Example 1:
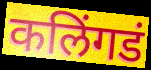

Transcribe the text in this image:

कलिंगडं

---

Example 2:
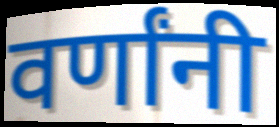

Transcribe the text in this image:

वर्णांनी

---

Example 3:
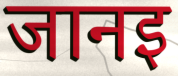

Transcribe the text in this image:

जानइ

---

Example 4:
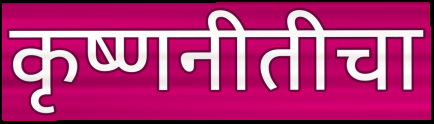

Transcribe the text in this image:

कृष्णनीतीचा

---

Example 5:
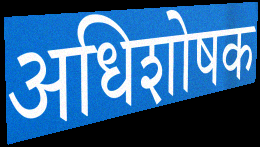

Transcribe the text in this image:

अधिशोषक